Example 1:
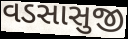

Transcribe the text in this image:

વડસાસુજી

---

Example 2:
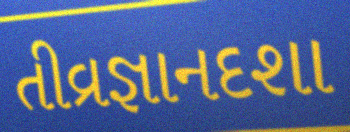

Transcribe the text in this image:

તીવ્રજ્ઞાનદશા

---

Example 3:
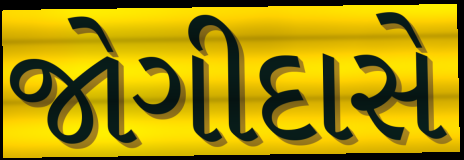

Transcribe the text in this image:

જોગીદાસે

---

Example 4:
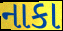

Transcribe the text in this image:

નાકા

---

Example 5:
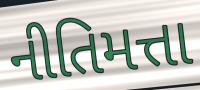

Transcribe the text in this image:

નીતિમત્તા